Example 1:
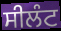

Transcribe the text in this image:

ਸੀਲੰਟ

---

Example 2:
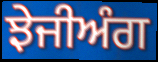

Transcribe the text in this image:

ਝੇਜੀਅੰਗ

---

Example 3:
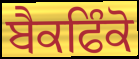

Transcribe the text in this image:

ਬੈਕਫਿੰਕੋ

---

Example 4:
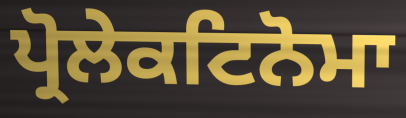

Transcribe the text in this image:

ਪ੍ਰੋਲੇਕਟਿਨੋਮਾ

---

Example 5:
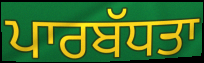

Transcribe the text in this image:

ਪਾਰਬੱਧਤਾ